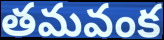
తమవంక